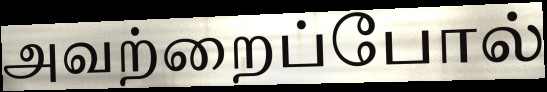
அவற்றைப்போல்